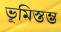
ভূমিস্তম্ভ